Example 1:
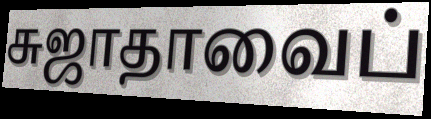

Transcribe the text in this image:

சுஜாதாவைப்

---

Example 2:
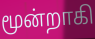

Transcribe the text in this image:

மூன்றாகி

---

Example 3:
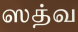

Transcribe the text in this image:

ஸத்வ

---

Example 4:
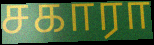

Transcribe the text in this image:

சகாரா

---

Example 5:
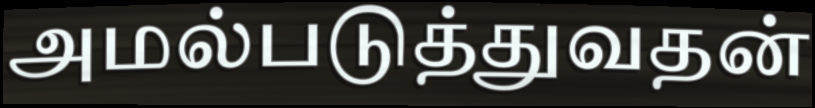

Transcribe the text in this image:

அமல்படுத்துவதன்